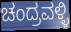
ಚಂದ್ರವಳ್ಳಿ